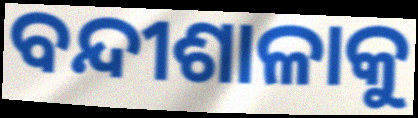
ବନ୍ଦୀଶାଳାକୁ